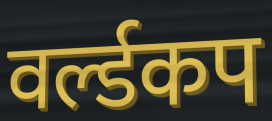
वर्ल्डकप